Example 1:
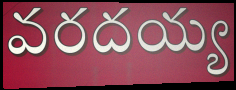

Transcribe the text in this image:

వరదయ్య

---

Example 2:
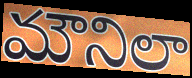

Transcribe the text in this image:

మౌనిలా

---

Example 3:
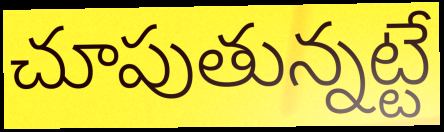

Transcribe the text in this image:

చూపుతున్నట్టే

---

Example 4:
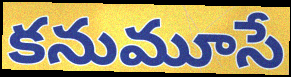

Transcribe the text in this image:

కనుమూసే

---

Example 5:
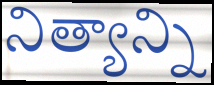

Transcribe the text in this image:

నిత్యాన్ని